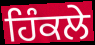
ਹਿੰਕਲੇ